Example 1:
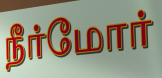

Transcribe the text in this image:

நீர்மோர்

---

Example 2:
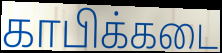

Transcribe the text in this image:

காபிக்கடை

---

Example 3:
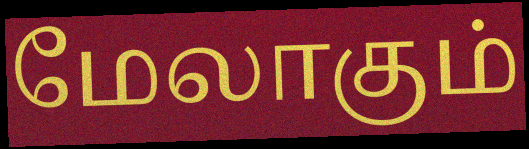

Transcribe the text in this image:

மேலாகும்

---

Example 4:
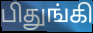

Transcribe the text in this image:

பிதுங்கி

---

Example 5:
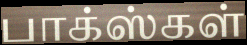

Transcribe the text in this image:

பாக்ஸ்கள்